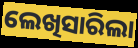
ଲେଖିସାରିଲା